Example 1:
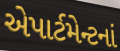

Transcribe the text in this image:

એપાર્ટમેન્ટનાં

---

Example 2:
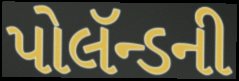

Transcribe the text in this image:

પોલૅન્ડની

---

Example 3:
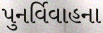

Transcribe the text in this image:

પુનર્વિવાહના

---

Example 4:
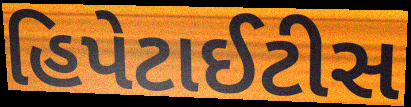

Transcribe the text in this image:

હિપેટાઈટીસ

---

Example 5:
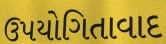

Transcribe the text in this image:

ઉપયોગિતાવાદ